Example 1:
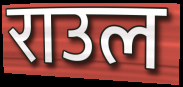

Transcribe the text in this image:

राउल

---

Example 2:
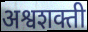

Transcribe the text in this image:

अश्वशक्ती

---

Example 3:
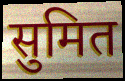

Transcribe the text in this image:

सुमित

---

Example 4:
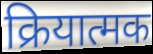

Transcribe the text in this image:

क्रियात्मक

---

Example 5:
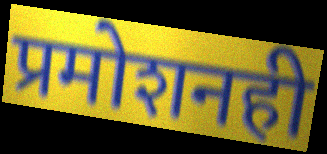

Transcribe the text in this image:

प्रमोशनही